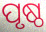
ପୃଷ୍ଠ